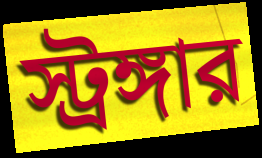
স্ট্রঙ্গার